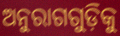
ଅନୁରାଗଗୁଡ଼ିକୁ